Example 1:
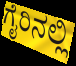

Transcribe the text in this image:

ಗೈರಿನಲ್ಲಿ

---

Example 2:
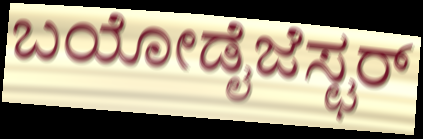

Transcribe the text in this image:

ಬಯೋಡೈಜೆಸ್ಟರ್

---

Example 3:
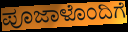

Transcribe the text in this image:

ಪೂಜಾಳೊಂದಿಗೆ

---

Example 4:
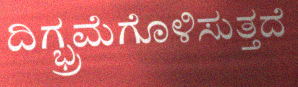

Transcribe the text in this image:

ದಿಗ್ಭ್ರಮೆಗೊಳಿಸುತ್ತದೆ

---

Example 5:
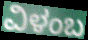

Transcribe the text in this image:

ವಿಳಂಬ